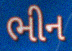
ભીન